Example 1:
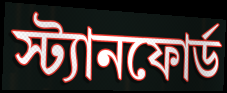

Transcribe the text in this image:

স্ট্যানফোর্ড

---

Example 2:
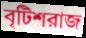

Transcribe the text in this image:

বৃটিশরাজ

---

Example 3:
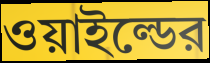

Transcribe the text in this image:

ওয়াইল্ডের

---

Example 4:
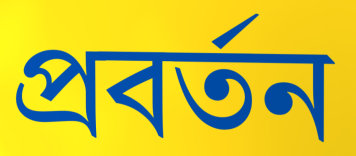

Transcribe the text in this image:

প্রবর্তন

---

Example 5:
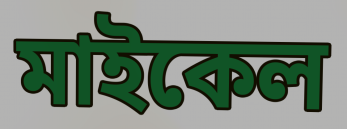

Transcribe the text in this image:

মাইকেল